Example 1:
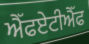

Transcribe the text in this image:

ਐੱਫਏਟੀਐੱਫ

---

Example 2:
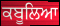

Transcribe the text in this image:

ਕਬੂਲਿਆ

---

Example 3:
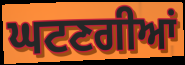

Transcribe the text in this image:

ਘਟਣਗੀਆਂ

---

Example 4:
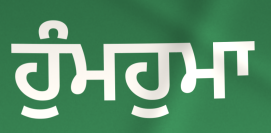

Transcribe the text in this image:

ਹੁੰਮਹੁਮਾ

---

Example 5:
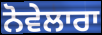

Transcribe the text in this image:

ਨੋਵੇਲਾਰਾ